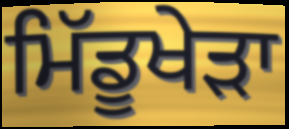
ਮਿੱਡੂਖੇੜਾ